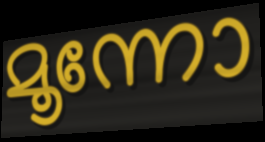
മൂന്നോ